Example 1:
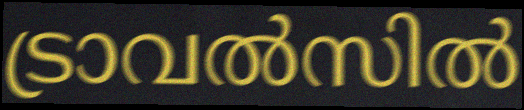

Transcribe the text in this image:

ട്രാവൽസിൽ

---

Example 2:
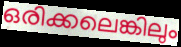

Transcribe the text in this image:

ഒരിക്കലെങ്കിലും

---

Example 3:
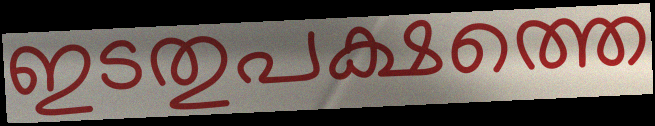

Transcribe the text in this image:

ഇടതുപക്ഷത്തെ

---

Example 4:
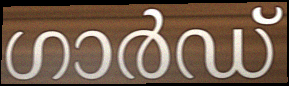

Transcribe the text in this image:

ഗാർഡ്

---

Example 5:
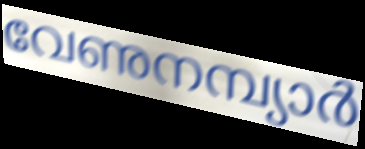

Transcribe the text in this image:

വേണുനമ്പ്യാർ